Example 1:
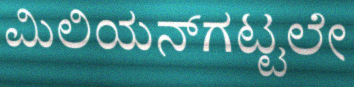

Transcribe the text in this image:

ಮಿಲಿಯನ್‌ಗಟ್ಟಲೇ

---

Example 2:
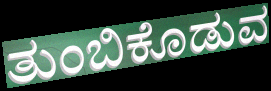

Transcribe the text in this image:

ತುಂಬಿಕೊಡುವ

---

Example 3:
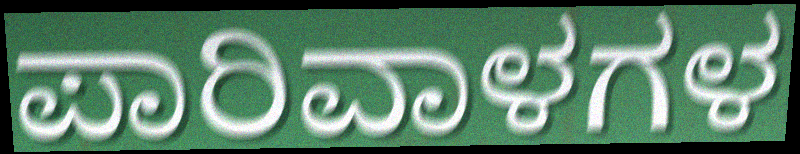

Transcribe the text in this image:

ಪಾರಿವಾಳಗಳ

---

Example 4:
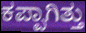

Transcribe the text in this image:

ಕಪ್ಪಾಗಿತ್ತು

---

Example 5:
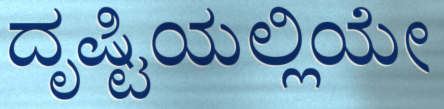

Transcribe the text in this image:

ದೃಷ್ಟಿಯಲ್ಲಿಯೇ